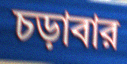
চড়াবার